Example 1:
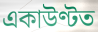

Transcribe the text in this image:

একাউণ্টত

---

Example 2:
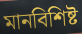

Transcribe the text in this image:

মানবিশিষ্ট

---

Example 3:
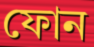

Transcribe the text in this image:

ফোন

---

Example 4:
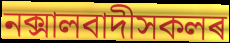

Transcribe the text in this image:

নক্সালবাদীসকলৰ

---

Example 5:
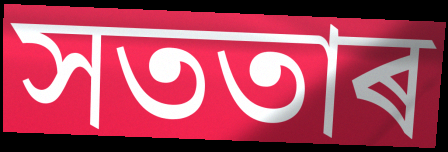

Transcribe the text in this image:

সততাৰ